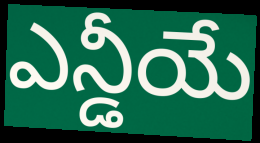
ఎన్డీయే